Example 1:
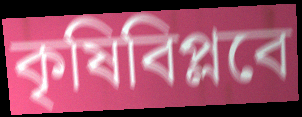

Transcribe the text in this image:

কৃষিবিপ্লবে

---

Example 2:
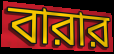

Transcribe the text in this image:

বারার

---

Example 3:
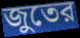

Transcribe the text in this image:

জুতের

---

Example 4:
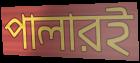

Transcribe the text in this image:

পালারই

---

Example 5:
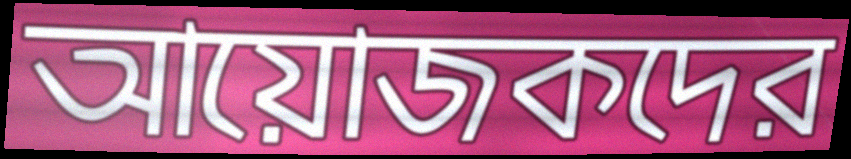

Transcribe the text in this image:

আয়োজকদের